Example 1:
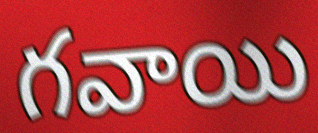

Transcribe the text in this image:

గవాయి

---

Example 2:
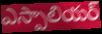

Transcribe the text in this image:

ఎస్పాలియర్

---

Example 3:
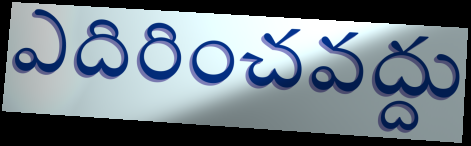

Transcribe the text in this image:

ఎదిరించవద్దు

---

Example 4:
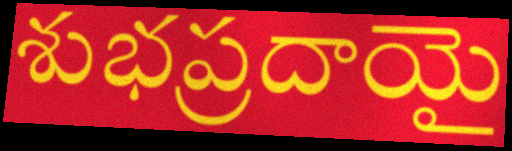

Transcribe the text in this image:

శుభప్రదాయై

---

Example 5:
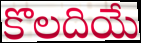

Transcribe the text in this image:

కొలదియే